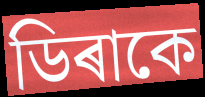
ডিৰাকে